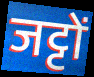
जट्टों